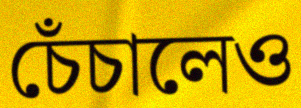
চেঁচালেও